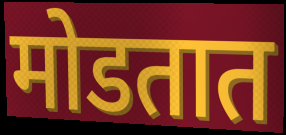
मोडतात